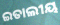
ଇତାଲୀୟ